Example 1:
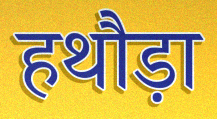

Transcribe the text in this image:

हथौड़ा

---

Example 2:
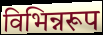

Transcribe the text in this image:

विभिन्नरूप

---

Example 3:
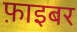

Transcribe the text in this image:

फ़ाइबर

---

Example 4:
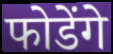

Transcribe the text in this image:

फोडेंगे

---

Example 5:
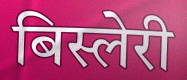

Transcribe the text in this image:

बिस्लेरी